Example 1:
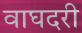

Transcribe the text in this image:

वाघदरी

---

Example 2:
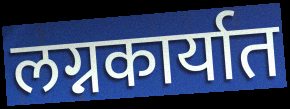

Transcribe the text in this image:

लग्नकार्यात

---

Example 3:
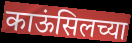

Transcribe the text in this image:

काऊंसिलच्या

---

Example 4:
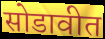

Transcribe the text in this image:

सोडावीत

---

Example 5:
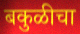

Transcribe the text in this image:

बकुळीचा